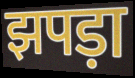
झपड़ा